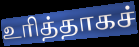
உரித்தாகச்